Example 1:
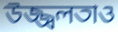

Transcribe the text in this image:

উজ্জ্বলতাও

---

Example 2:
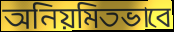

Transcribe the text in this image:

অনিয়মিতভাবে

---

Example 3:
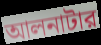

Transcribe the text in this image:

আলনাটার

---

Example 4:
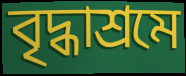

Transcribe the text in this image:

বৃদ্ধাশ্রমে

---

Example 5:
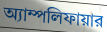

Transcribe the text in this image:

অ্যাম্পলিফায়ার